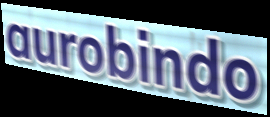
aurobindo